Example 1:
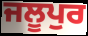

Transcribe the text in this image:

ਜਲੂਪੁਰ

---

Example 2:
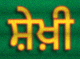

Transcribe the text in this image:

ਸ਼ੇਖ਼ੀ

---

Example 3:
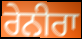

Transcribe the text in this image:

ਰੇਨੀਰਾ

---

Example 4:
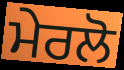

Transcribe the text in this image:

ਮੇਰਲੋ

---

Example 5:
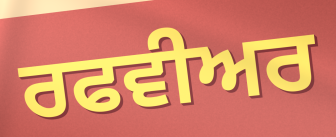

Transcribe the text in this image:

ਰਫਵੀਅਰ